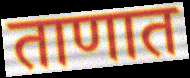
ताणात